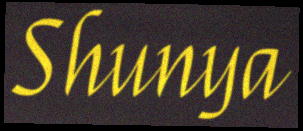
Shunya